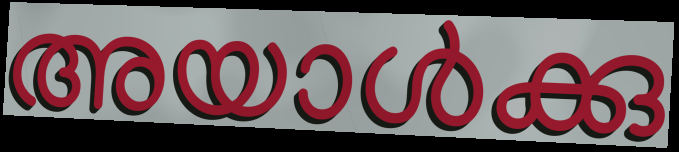
അയാൾക്കു